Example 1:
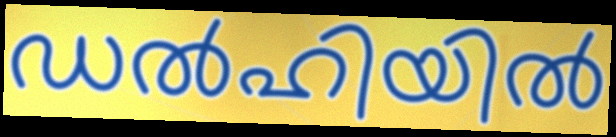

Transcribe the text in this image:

ഡൽഹിയിൽ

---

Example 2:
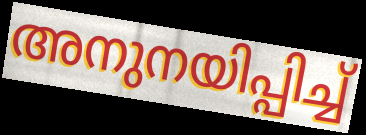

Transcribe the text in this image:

അനുനയിപ്പിച്ച്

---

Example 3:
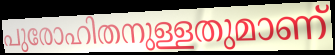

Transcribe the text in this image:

പുരോഹിതനുള്ളതുമാണ്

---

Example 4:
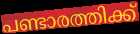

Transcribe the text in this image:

പണ്ടാരത്തിക്ക്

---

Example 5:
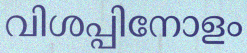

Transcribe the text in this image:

വിശപ്പിനോളം